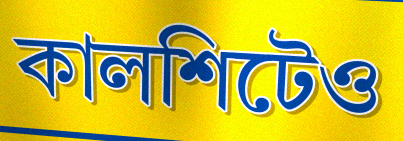
কালশিটেও